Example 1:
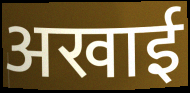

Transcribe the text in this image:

अखाई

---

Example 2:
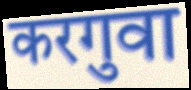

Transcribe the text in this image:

करगुवा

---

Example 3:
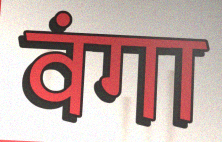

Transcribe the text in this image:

वंगा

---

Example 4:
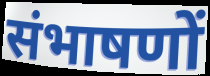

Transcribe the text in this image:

संभाषणों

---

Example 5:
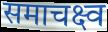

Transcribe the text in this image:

समाचक्ष्व